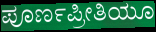
ಪೂರ್ಣಪ್ರೀತಿಯೂ